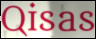
Qisas